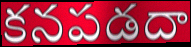
కనపడదా